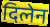
दिलेन